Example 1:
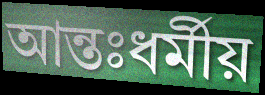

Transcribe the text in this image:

আন্তঃধর্মীয়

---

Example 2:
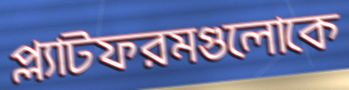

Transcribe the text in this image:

প্ল্যাটফরমগুলোকে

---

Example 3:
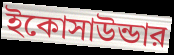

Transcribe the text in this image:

ইকোসাউন্ডার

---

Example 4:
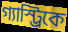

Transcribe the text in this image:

গ্যাস্ট্রিকে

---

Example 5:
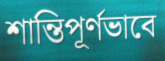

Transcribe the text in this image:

শান্তিপূর্ণভাবে